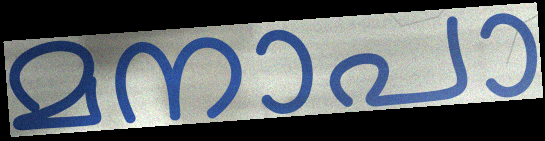
മനാപാ